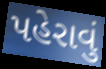
પહેરાવું